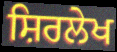
ਸ਼ਿਰਲੇਖ